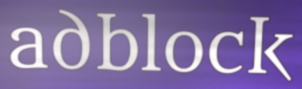
adblock